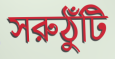
সরুঠুঁটি